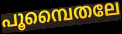
പൂമ്പൈതലേ